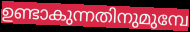
ഉണ്ടാകുന്നതിനുമുമ്പേ